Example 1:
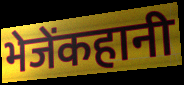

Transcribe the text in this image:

भेजेंकहानी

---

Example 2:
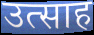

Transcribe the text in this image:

उत्साह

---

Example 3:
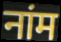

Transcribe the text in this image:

नांम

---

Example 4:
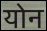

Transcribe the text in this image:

योन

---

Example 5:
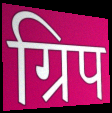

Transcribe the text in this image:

ग्रिप